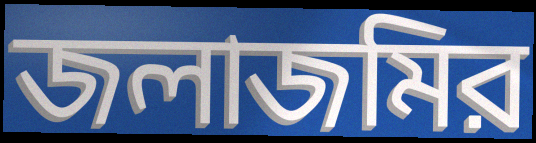
জলাজমির